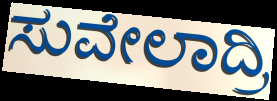
ಸುವೇಲಾದ್ರಿ